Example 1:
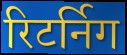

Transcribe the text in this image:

रिटर्निग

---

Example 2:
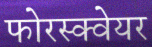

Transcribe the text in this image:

फोरस्क्वेयर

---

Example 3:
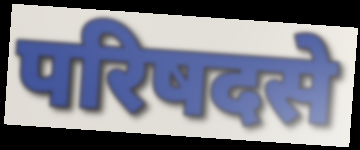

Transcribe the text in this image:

परिषदसे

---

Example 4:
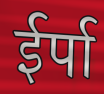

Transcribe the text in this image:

ईर्पा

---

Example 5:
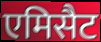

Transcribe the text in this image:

एमिसैट